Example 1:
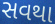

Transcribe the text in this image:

સવથા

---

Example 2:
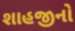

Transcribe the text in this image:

શાહજીનો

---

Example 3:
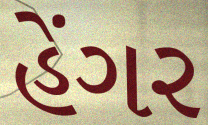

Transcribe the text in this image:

હેંગર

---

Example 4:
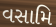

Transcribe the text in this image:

વસામિ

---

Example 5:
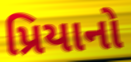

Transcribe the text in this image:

પ્રિયાનો